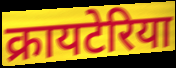
क्रायटेरिया